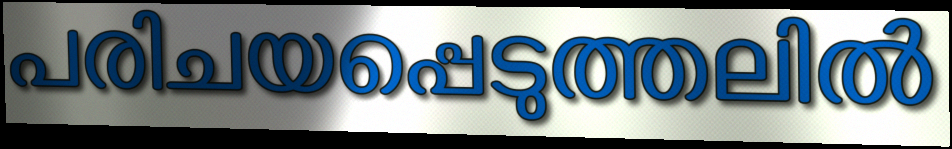
പരിചയപ്പെടുത്തലിൽ